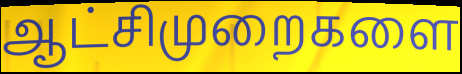
ஆட்சிமுறைகளை